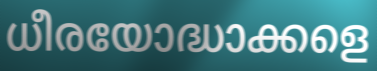
ധീരയോദ്ധാക്കളെ